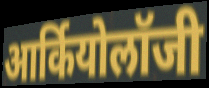
आर्कियोलॉजी